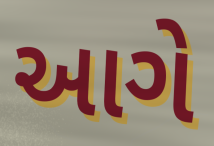
આગે